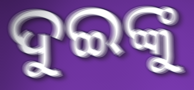
ଦୁଇଙ୍କୁ